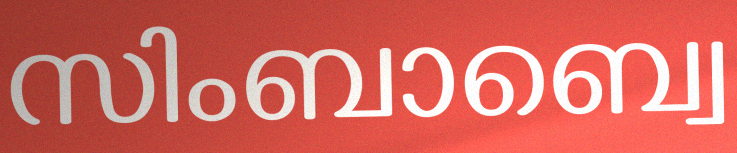
സിംബാബ്വെ